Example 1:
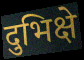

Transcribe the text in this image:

दुभिक्षे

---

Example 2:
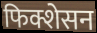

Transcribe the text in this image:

फिक्शेसन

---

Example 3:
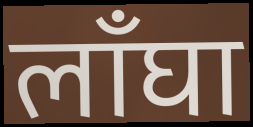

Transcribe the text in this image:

लाँघा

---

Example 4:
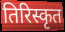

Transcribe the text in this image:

तिरिस्कृत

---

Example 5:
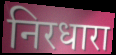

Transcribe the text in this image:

निरधारा